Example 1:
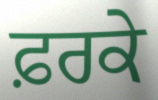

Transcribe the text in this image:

ਫ਼ਰਕੇ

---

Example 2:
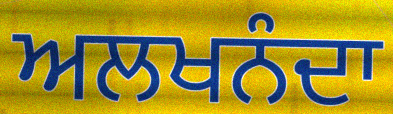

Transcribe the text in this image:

ਅਲਖਨੰਦਾ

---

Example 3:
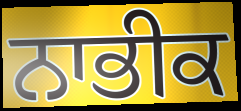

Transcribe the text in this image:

ਨਾਭੀਕ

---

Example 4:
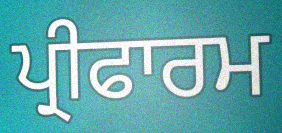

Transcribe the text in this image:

ਪ੍ਰੀਫਾਰਮ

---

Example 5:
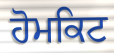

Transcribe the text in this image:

ਹੋਮਕਿਟ